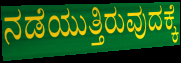
ನಡೆಯುತ್ತಿರುವುದಕ್ಕೆ